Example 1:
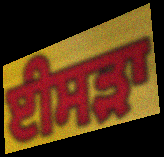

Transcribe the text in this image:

ਈਸੜਾ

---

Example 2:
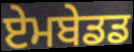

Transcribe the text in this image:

ਏਮਬੇਡਡ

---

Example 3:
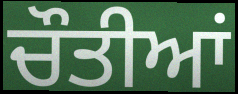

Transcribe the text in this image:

ਚੌਤੀਆਂ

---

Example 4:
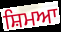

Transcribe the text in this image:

ਸ਼ਿਮਆ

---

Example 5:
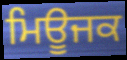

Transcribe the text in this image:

ਮਿਊਜਕ